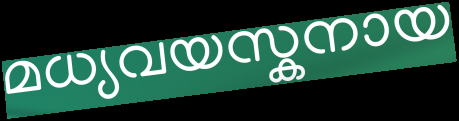
മധ്യവയസ്കനായ